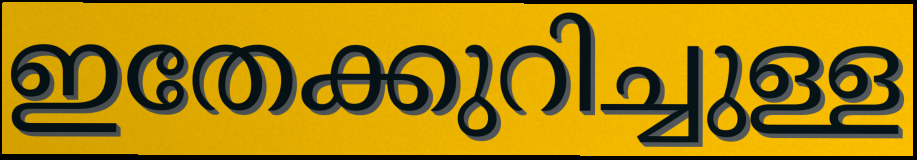
ഇതേക്കുറിച്ചുള്ള